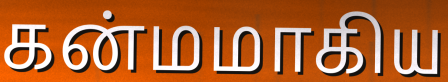
கன்மமாகிய